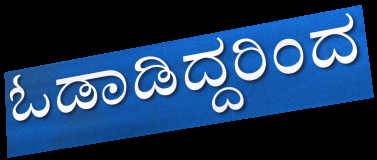
ಓಡಾಡಿದ್ದರಿಂದ